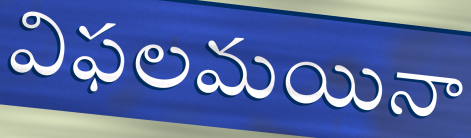
విఫలమయినా